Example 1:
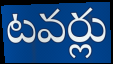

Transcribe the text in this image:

టవర్లు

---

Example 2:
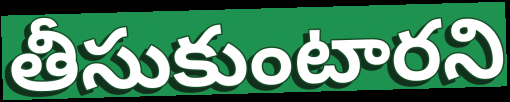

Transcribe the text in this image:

తీసుకుంటారని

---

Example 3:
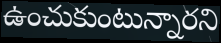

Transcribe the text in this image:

ఉంచుకుంటున్నారని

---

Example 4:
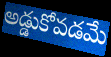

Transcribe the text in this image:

అడ్డుకోవడమే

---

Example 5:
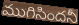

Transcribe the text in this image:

ముగిసిందనీ